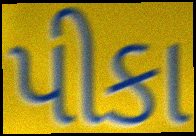
પીકા